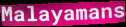
Malayamans